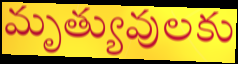
మృత్యువులకు